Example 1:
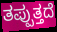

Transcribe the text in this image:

ತಪ್ಪುತ್ತದೆ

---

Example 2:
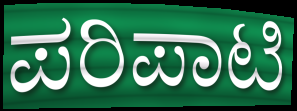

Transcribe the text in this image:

ಪರಿಪಾಟಿ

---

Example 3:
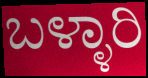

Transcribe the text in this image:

ಬಳ್ಳಾರಿ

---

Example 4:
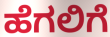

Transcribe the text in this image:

ಹೆಗಲಿಗೆ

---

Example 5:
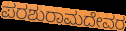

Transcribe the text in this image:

ಪರಶುರಾಮದೇವರ